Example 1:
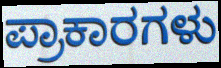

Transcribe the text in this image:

ಪ್ರಾಕಾರಗಳು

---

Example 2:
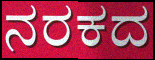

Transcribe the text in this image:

ನರಕದ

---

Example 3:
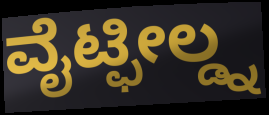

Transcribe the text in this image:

ವೈಟ್ಫೀಲ್ಡ್ನ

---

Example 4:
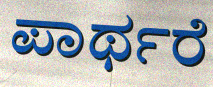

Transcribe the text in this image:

ಪಾರ್ಥರೆ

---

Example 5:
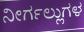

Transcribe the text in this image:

ನೀರ್ಗಲ್ಲುಗಳ